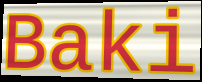
Baki